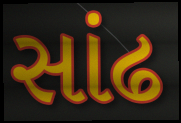
સાંઢ